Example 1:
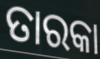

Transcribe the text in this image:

ତାରକା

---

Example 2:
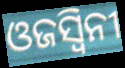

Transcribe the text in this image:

ଓଜସ୍ଵିନୀ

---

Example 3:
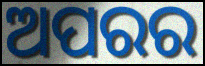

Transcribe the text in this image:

ଅପରର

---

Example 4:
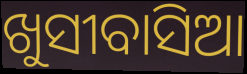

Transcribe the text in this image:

ଖୁସୀବାସିଆ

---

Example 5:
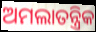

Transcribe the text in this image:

ଅମଲାତନ୍ତ୍ରିକ